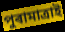
পুৰামাত্ৰাই